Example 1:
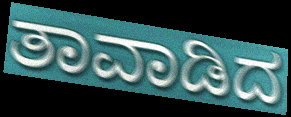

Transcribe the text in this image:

ತಾವಾಡಿದ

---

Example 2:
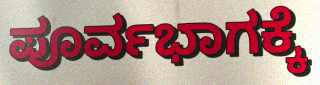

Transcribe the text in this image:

ಪೂರ್ವಭಾಗಕ್ಕೆ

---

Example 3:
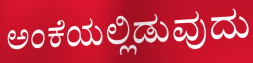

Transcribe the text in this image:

ಅಂಕೆಯಲ್ಲಿಡುವುದು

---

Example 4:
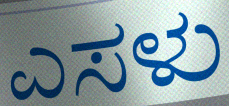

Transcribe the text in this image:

ಎಸಳು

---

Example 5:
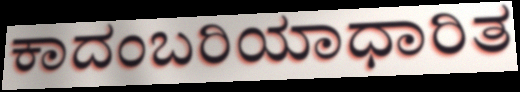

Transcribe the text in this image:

ಕಾದಂಬರಿಯಾಧಾರಿತ